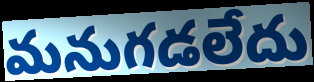
మనుగడలేదు